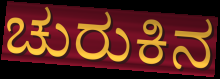
ಚುರುಕಿನ